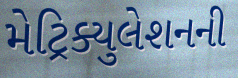
મેટ્રિક્યુલેશનની